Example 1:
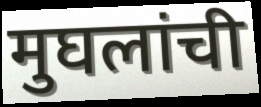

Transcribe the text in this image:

मुघलांची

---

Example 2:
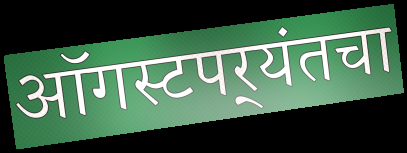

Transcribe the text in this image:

ऑगस्टपर्यंतचा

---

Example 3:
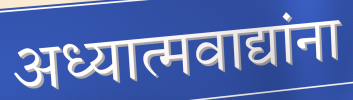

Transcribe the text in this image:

अध्यात्मवाद्यांना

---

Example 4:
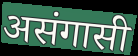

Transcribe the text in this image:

असंगासी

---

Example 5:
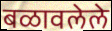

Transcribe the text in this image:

बळावलेले